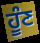
ਹੂੰਣ